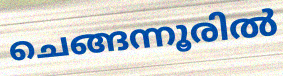
ചെങ്ങന്നൂരിൽ